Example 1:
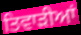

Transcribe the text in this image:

ਤਿਵਾੜੀਆਂ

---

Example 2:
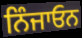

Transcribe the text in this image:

ਨਿੰਜਾਓਨ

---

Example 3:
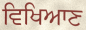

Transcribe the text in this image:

ਵਿਖਿਆਣ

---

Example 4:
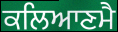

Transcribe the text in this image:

ਕਲਿਆਣਮੈ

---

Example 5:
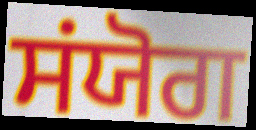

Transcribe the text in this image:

ਸਂਯੋਗ